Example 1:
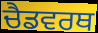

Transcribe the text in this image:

ਚੈਡਵਰਥ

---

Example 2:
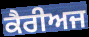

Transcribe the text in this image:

ਕੈਰੀਅਜ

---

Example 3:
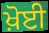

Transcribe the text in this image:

ਖ਼ੋਈ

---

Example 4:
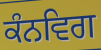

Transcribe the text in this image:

ਕੰਨਵਿਗ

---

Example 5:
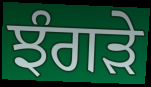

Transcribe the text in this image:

ਝੰਗੜੇ